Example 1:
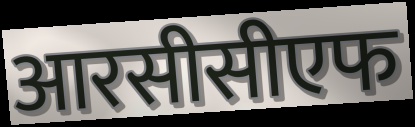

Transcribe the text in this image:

आरसीसीएफ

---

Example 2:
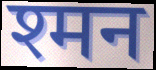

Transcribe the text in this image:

श्मन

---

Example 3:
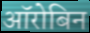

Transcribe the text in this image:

ऑरोबिन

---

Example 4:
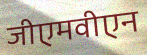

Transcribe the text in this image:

जीएमवीएन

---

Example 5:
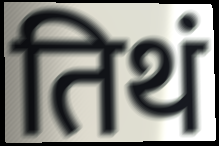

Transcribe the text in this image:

तिथं